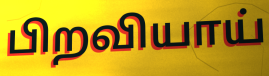
பிறவியாய்